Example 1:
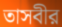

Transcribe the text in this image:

তাসবীর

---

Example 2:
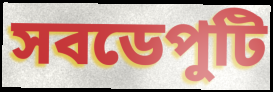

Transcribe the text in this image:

সবডেপুটি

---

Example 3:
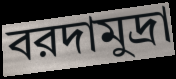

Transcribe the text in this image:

বরদামুদ্রা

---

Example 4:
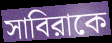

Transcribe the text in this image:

সাবিরাকে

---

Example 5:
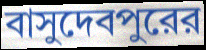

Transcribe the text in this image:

বাসুদেবপুরের